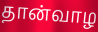
தான்வாழ